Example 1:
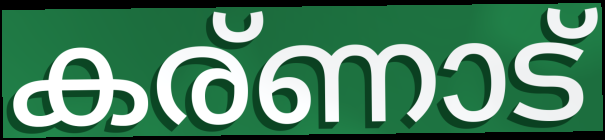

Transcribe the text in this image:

കര്ണാട്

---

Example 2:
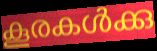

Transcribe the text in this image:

കൂരകൾക്കു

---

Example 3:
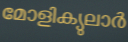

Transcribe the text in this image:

മോളിക്യുലാർ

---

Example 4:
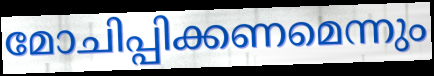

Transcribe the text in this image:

മോചിപ്പിക്കണമെന്നും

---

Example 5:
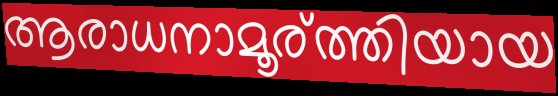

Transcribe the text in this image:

ആരാധനാമൂര്ത്തിയായ